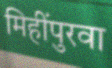
मिहींपुरवा